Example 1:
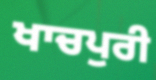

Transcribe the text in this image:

ਖਾਚਪੁਰੀ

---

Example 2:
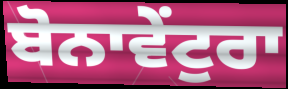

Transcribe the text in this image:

ਬੋਨਾਵੇਂਟੁਰਾ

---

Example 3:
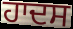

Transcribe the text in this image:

ਹਾਦਸ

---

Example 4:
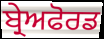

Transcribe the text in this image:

ਬ੍ਰੇਅਫੋਰਡ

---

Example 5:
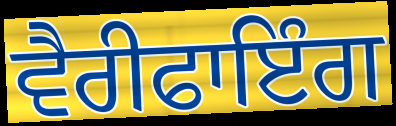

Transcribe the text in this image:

ਵੈਰੀਫਾਇੰਗ